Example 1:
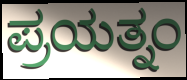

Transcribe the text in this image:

ಪ್ರಯತ್ನಂ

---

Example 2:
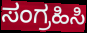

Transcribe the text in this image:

ಸಂಗ್ರಹಿಸಿ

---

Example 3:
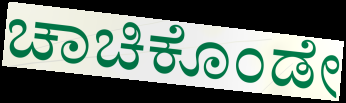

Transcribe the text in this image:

ಚಾಚಿಕೊಂಡೇ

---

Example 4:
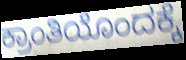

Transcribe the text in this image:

ಕ್ರಾಂತಿಯೊಂದಕ್ಕೆ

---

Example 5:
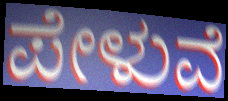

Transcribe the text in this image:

ಪೇಳುವೆ